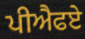
ਪੀਐਫਏ